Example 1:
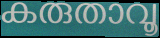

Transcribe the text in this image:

കരുതാവൂ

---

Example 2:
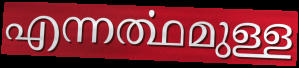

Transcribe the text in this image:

എന്നൎത്ഥമുള്ള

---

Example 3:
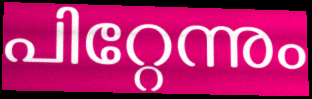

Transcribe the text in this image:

പിറ്റേന്നും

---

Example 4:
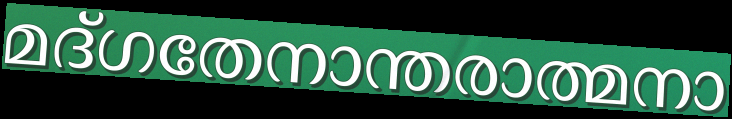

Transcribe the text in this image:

മദ്ഗതേനാന്തരാത്മനാ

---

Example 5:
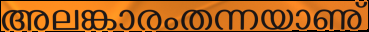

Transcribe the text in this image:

അലങ്കാരംതന്നയാണു്